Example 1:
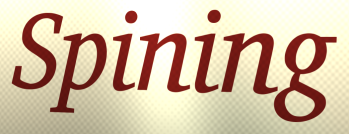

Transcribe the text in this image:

Spining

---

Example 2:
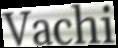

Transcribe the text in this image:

Vachi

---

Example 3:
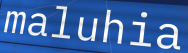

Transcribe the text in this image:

maluhia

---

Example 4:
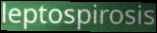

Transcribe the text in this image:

leptospirosis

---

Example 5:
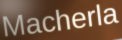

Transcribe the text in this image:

Macherla